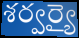
శర్వర్యై